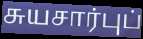
சுயசார்புப்